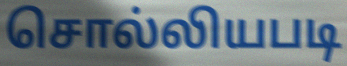
சொல்லியபடி